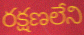
రక్షణలేని